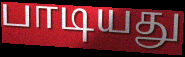
பாடியது